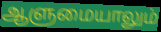
ஆளுமையாலும்